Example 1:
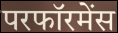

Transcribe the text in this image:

परफॉरमेंस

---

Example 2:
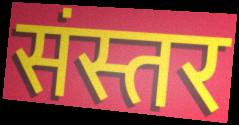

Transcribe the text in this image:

संस्तर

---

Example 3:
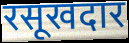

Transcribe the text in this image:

रसूखदार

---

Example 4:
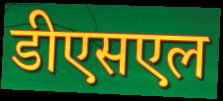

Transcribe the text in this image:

डीएसएल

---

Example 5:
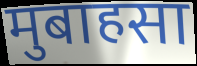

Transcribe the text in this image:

मुबाहसा